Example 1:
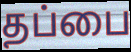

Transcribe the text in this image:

தப்பை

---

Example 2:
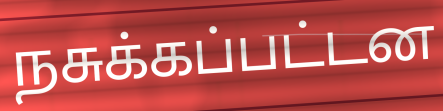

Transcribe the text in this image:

நசுக்கப்பட்டன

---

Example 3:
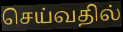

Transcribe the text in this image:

செய்வதில்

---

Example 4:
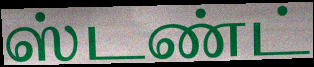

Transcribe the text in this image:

ஸ்டண்ட்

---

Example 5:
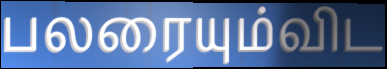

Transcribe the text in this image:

பலரையும்விட